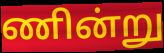
ணின்று